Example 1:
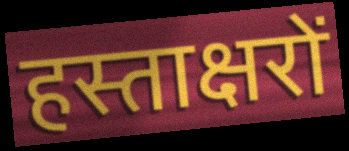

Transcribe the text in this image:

हस्ताक्षरों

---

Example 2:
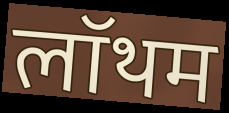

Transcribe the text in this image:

लॉथम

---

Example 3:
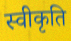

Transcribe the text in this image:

स्वीकृति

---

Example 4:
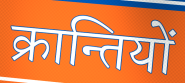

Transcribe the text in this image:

क्रान्तियों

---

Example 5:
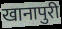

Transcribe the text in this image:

खानापुरी